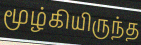
மூழ்கியிருந்த